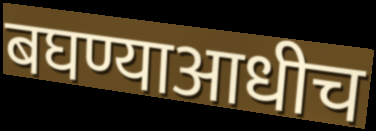
बघण्याआधीच